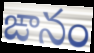
ఙానం